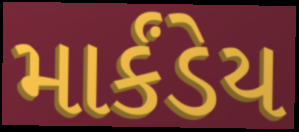
માર્કંડેય